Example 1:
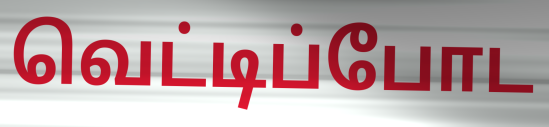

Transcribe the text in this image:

வெட்டிப்போட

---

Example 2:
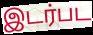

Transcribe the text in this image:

இடர்பட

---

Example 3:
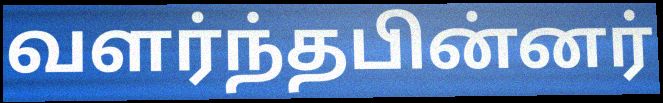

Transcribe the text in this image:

வளர்ந்தபின்னர்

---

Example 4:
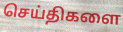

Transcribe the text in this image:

செய்திகளை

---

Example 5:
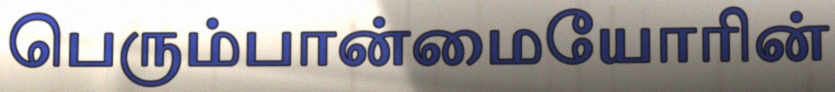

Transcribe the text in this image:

பெரும்பான்மையோரின்